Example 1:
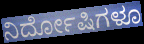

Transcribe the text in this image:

ನಿರ್ದೋಷಿಗಳೂ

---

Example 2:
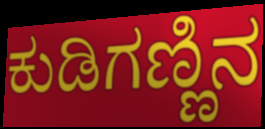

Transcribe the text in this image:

ಕುಡಿಗಣ್ಣಿನ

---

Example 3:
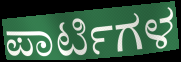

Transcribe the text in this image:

ಪಾರ್ಟಿಗಳ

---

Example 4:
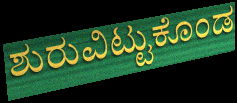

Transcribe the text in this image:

ಶುರುವಿಟ್ಟುಕೊಂಡ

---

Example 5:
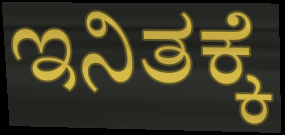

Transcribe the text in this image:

ಇನಿತಕ್ಕೆ